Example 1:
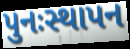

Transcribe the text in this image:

પુનઃસ્થાપન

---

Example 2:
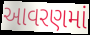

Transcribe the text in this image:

આવરણમાં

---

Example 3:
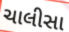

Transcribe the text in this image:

ચાલીસા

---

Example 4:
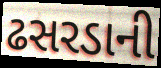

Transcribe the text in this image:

ઢસરડાની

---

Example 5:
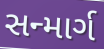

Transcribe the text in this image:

સન્માર્ગ